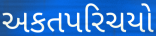
અકતપરિચયો